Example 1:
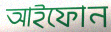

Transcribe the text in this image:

আইফোন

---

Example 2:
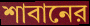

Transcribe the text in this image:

শাবানের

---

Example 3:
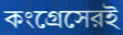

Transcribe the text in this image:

কংগ্রেসেরই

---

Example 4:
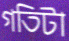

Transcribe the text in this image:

গতিটা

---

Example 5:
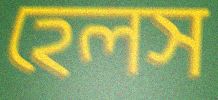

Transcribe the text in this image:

হেলস